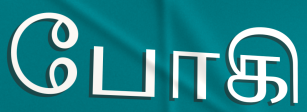
போகி